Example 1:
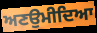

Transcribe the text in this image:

ਅਣਉਮੀਦਿਆ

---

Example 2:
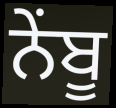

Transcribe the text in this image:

ਨੇਂਬੂ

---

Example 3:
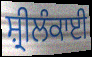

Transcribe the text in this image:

ਸ਼੍ਰੀਲੰਕਾਈ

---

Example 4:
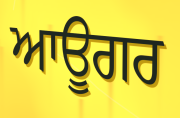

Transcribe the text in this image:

ਆਊਗਰ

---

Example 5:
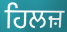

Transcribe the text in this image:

ਹਿਲਜ਼